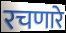
रचणारे